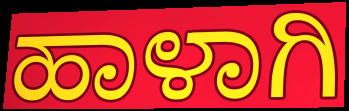
ಹಾಳಾಗಿ